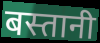
बस्तानी